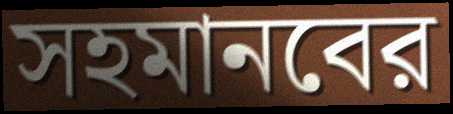
সহমানবের